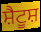
ਸ਼ੈਟੂਸ਼